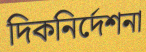
দিকনির্দেশনা